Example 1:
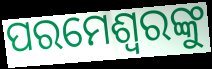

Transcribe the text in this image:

ପରମେଶ୍ୱରଙ୍କୁ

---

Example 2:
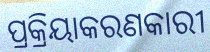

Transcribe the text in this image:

ପ୍ରକ୍ରିୟାକରଣକାରୀ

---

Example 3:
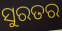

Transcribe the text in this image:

ସୁରତର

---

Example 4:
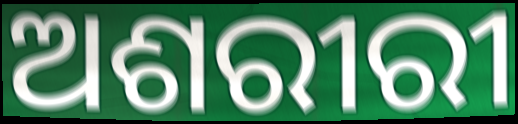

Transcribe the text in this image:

ଅଶରୀରୀ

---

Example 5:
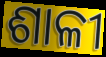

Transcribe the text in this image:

ଶାଳୀ